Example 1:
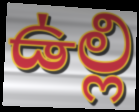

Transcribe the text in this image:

ఉల్లి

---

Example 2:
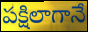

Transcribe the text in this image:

పక్షిలాగానే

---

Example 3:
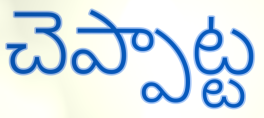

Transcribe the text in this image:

చెప్పాట్ట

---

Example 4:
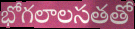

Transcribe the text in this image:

భోగలాలసతతో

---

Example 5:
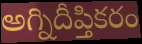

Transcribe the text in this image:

అగ్నిదీప్తికరం